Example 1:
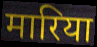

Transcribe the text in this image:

मारिया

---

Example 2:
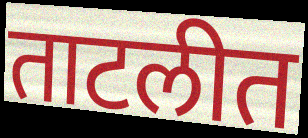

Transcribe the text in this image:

ताटलीत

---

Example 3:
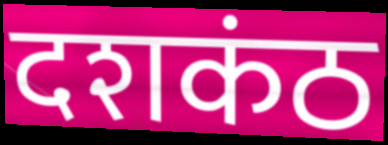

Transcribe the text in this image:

दशकंठ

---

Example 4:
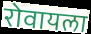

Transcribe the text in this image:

रोवायला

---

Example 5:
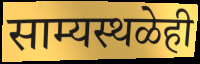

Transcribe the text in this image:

साम्यस्थळेही